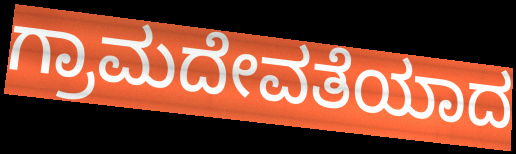
ಗ್ರಾಮದೇವತೆಯಾದ